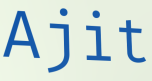
Ajit